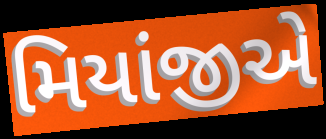
મિયાંજીએ